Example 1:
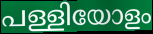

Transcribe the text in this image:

പള്ളിയോളം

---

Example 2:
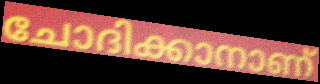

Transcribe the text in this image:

ചോദിക്കാനാണ്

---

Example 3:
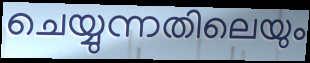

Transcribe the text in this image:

ചെയ്യുന്നതിലെയും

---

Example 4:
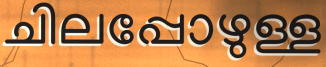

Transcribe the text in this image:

ചിലപ്പോഴുള്ള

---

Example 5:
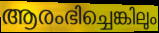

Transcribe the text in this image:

ആരംഭിച്ചെങ്കിലും